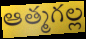
ఆత్మగల్ల